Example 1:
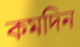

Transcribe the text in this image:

কমদিন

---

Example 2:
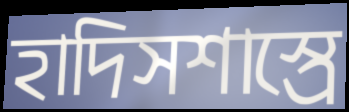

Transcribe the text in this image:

হাদিসশাস্ত্রে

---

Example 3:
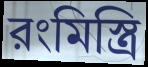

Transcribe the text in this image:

রংমিস্ত্রি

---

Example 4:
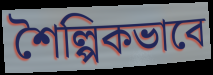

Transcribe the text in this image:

শৈল্পিকভাবে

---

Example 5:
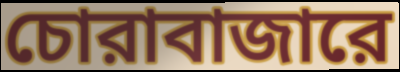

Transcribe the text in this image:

চোরাবাজারে